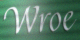
Wroe